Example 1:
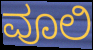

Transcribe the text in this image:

ವೂಲಿ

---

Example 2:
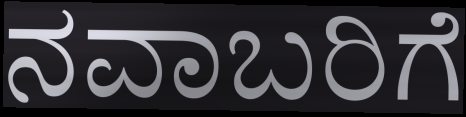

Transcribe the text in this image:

ನವಾಬರಿಗೆ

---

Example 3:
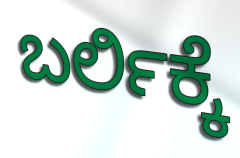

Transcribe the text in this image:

ಬರ್ಲಿಕ್ಕೆ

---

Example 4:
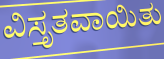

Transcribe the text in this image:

ವಿಸ್ತೃತವಾಯಿತು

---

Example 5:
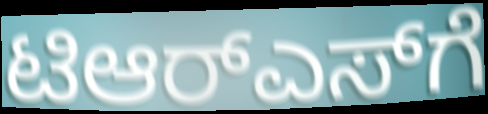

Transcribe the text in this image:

ಟಿಆರ್‌ಎಸ್‌ಗೆ